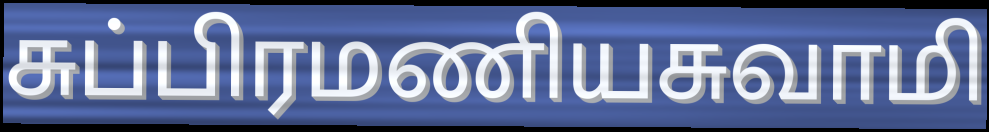
சுப்பிரமணியசுவாமி